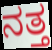
ನತ್ತ